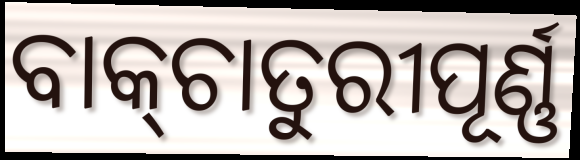
ବାକ୍‌ଚାତୁରୀପୂର୍ଣ୍ଣ